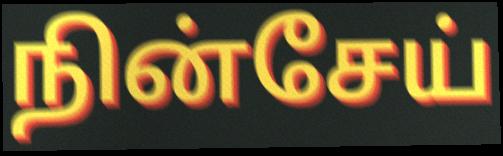
நின்சேய்